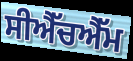
ਸੀਐੱਚਐੱਮ